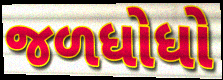
જળધોધો